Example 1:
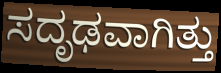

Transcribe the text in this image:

ಸದೃಢವಾಗಿತ್ತು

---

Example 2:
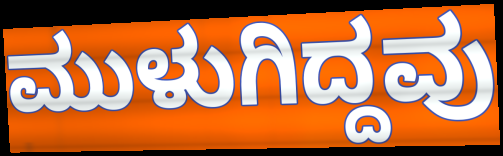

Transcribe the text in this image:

ಮುಳುಗಿದ್ದವು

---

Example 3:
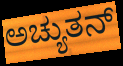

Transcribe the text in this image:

ಅಚ್ಯುತನ್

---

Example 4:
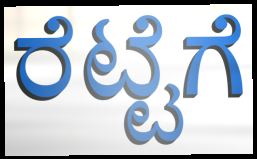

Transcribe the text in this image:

ರೆಟ್ಟೆಗೆ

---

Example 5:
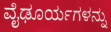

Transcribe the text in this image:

ವೈಢೂರ್ಯಗಳನ್ನು